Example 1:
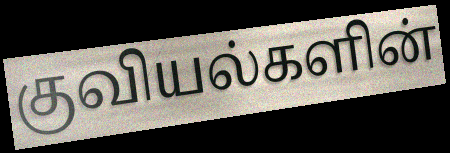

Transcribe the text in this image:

குவியல்களின்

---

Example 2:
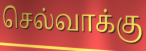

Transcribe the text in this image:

செல்வாக்கு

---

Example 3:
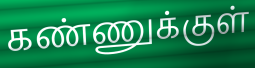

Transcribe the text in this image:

கண்ணுக்குள்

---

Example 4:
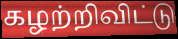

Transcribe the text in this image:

கழற்றிவிட்டு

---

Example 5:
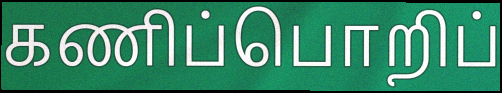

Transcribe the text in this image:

கணிப்பொறிப்